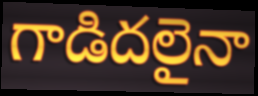
గాడిదలైనా